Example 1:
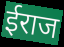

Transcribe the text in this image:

ईराज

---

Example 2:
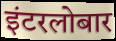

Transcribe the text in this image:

इंटरलोबार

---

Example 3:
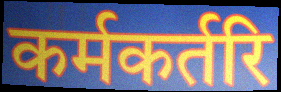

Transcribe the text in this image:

कर्मकर्तरि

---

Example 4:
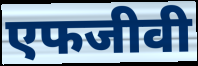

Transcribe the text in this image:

एफजीवी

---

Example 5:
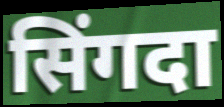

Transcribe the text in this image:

सिंगदा